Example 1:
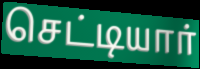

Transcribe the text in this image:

செட்டியார்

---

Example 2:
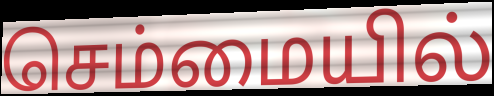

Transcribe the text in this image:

செம்மையில்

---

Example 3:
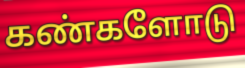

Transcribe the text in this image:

கண்களோடு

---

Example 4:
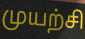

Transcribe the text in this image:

முயற்சி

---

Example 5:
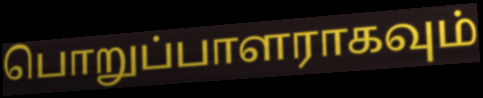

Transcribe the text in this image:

பொறுப்பாளராகவும்